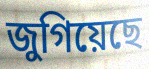
জুগিয়েছে